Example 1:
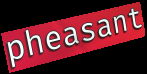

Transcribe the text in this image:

pheasant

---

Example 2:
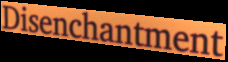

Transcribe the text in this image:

Disenchantment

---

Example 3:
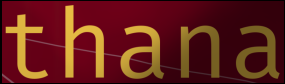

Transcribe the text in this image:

thana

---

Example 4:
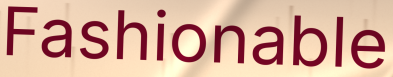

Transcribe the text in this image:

Fashionable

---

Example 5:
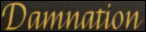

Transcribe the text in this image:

Damnation